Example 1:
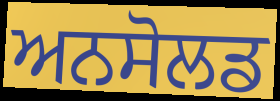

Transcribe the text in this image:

ਅਨਸੋਲਡ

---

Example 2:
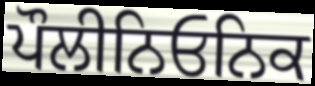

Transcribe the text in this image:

ਪੌਲੀਨਿਓਨਿਕ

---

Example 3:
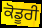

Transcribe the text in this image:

ਕੋਡੂਰੀ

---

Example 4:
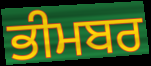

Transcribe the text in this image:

ਭੀਮਬਰ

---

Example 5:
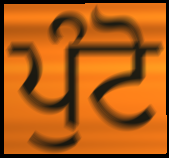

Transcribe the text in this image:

ਪੁੰਟੋ